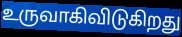
உருவாகிவிடுகிறது